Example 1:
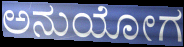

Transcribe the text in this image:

ಅನುಯೋಗ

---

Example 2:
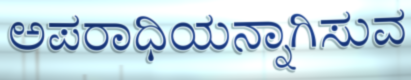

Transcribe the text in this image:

ಅಪರಾಧಿಯನ್ನಾಗಿಸುವ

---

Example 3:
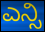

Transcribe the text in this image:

ಎನ್ಸಿ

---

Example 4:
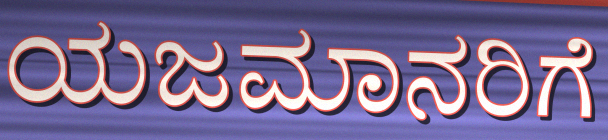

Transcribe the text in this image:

ಯಜಮಾನರಿಗೆ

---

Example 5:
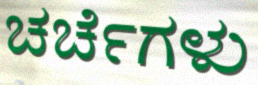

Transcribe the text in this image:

ಚರ್ಚೆಗಳು